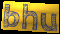
bhu